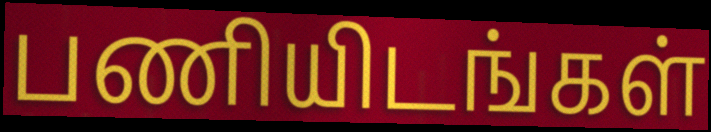
பணியிடங்கள்